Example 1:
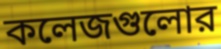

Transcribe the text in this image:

কলেজগুলোর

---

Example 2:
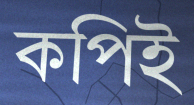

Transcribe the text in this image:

কপিই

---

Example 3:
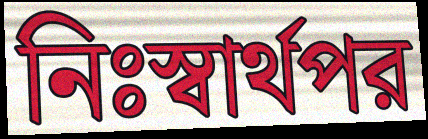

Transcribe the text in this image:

নিঃস্বার্থপর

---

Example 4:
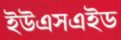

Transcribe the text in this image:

ইউএসএইড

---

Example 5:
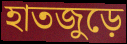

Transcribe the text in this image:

হাতজুড়ে